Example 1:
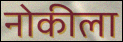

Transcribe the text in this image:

नोकीला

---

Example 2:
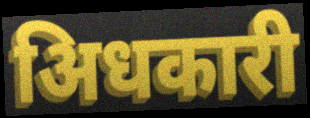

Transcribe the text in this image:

अिधकारी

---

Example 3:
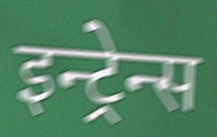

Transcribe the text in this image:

इन्ट्रेन्स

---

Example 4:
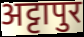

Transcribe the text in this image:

अट्टापुर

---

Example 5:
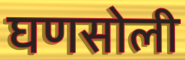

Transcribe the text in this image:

घणसोली